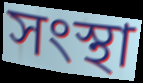
সংস্থা